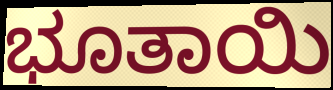
ಭೂತಾಯಿ